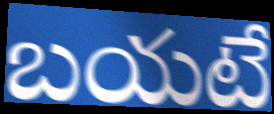
బయటే